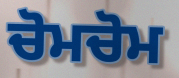
ਚੋਮਚੋਮ